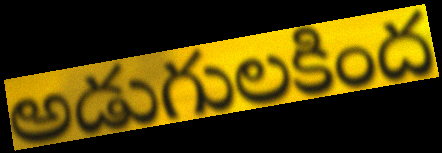
అడుగులకింద